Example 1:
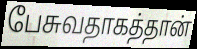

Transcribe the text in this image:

பேசுவதாகத்தான்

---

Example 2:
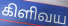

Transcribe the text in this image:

கிளிவய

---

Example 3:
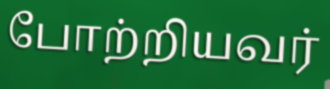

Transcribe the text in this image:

போற்றியவர்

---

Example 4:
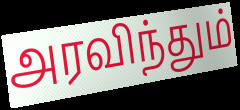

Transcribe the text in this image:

அரவிந்தும்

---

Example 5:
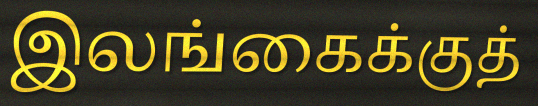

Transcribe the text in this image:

இலங்கைக்குத்